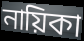
নায়িকা